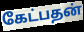
கேட்பதன்